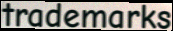
trademarks